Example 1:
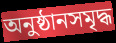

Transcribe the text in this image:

অনুষ্ঠানসমৃদ্ধ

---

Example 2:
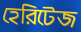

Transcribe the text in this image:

হেরিটেজ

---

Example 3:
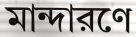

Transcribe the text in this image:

মান্দারণে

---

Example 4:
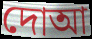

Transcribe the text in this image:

দোআ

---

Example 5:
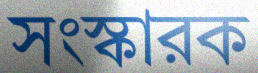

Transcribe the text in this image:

সংস্কারক